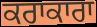
ਕਰਾਕਾਰਾ